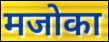
मजोका